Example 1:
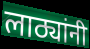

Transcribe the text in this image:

लाठ्यांनी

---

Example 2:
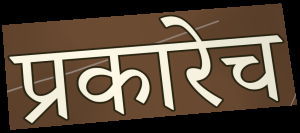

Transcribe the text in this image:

प्रकारेच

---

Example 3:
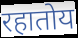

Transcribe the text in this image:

रहातोय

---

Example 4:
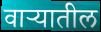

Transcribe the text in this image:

वाऱ्यातील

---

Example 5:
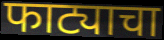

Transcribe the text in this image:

फाट्याचा